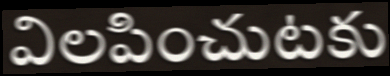
విలపించుటకు